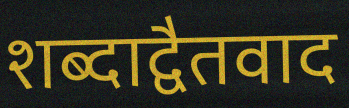
शब्दाद्वैतवाद